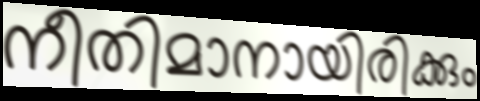
നീതിമാനായിരിക്കും